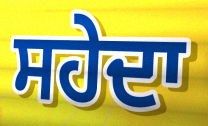
ਸਹੇਦਾ